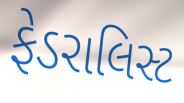
ફેડરાલિસ્ટ